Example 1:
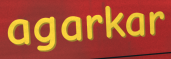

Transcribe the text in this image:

agarkar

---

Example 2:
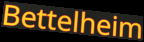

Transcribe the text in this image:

Bettelheim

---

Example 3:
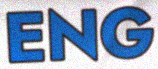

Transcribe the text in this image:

ENG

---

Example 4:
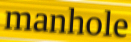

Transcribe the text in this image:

manhole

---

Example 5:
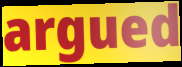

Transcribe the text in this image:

argued